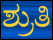
ಶ್ರುತಿ